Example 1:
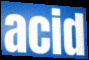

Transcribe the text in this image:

acid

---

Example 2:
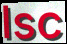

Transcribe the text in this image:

Isc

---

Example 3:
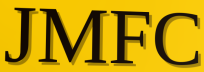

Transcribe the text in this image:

JMFC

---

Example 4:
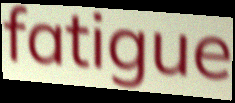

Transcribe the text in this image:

fatigue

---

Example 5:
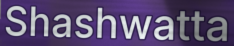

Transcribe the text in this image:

Shashwatta